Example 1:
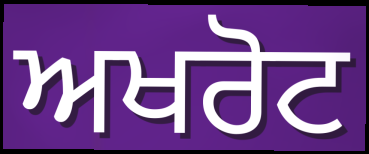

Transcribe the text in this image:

ਅਖਰੋਟ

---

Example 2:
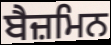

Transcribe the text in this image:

ਬੈਜ਼ਮਿਨ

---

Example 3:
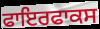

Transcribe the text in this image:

ਫਾਇਰਫਾਕਸ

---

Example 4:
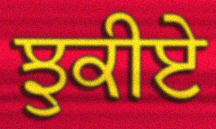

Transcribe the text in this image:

ਝੁਕੀਏ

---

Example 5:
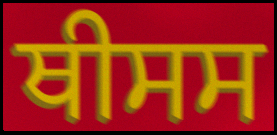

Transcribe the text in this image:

ਥੀਸਸ